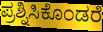
ಪ್ರಶ್ನಿಸಿಕೊಂಡರೆ